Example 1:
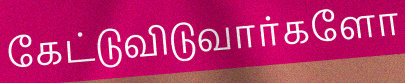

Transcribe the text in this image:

கேட்டுவிடுவார்களோ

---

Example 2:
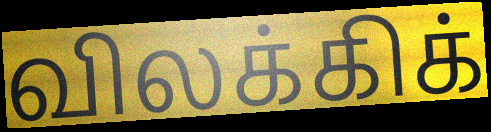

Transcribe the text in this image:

விலக்கிக்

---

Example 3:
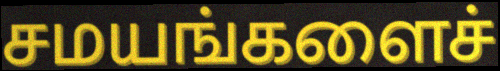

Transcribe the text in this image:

சமயங்களைச்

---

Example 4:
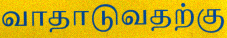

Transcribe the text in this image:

வாதாடுவதற்கு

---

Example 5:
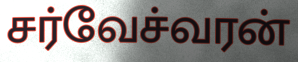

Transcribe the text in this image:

சர்வேச்வரன்